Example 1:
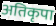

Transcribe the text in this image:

अतिकृपा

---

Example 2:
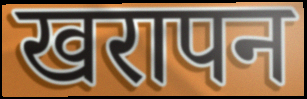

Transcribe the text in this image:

खरापन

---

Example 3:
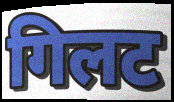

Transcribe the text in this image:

गिलट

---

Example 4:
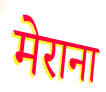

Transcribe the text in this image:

मेराना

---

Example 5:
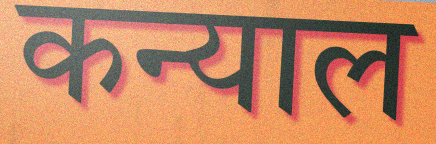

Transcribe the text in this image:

कन्याल